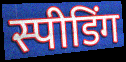
स्‍पीडिंग